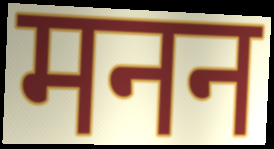
मनन